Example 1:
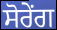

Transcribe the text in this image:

ਸੋਰੇਂਗ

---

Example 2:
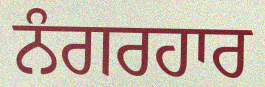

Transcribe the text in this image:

ਨੰਗਰਹਾਰ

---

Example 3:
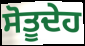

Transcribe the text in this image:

ਸੋਤੂਦੇਹ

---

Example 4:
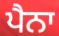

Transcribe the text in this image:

ਪੈਨਾ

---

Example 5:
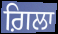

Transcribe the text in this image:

ਗ਼ਿਲਾ